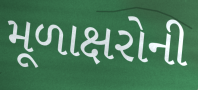
મૂળાક્ષરોની